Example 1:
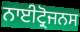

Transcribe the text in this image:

ਨਾਈਟ੍ਰੋਜਨਸ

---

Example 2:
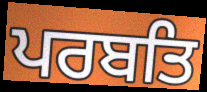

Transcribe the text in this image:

ਪਰਬਤਿ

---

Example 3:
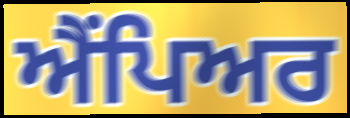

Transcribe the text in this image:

ਐਂਪਿਅਰ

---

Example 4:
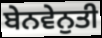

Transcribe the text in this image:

ਬੇਨਵੇਨੁਤੀ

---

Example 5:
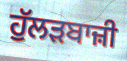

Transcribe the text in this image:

ਹੁੱਲੜਬਾਜ਼ੀ